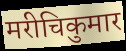
मरीचिकुमार